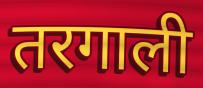
तरगाली